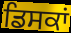
ਡਿਸਕਾਂ